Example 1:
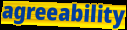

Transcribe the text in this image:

agreeability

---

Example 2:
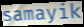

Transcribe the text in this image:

samayik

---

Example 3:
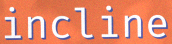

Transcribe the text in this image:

incline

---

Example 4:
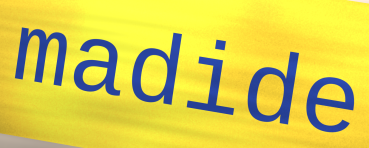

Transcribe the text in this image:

madide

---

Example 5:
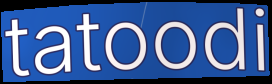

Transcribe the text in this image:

tatoodi